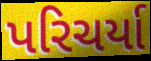
પરિચર્યા